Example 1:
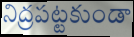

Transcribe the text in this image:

నిద్రపట్టకుండా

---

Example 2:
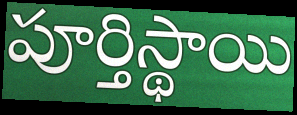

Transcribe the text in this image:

పూర్తిస్థాయి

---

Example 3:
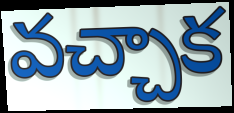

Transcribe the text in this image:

వచ్చాక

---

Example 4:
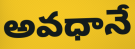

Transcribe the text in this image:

అవధానే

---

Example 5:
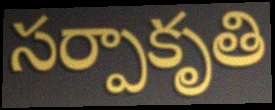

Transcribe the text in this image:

సర్పాకృతి